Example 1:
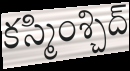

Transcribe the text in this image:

కస్మింశ్చిద్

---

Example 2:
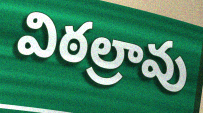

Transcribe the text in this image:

విఠల్రావు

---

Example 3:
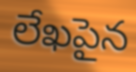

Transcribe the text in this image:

లేఖపైన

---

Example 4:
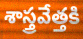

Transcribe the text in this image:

శాస్త్రవేత్తకి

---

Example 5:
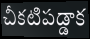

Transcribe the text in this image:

చీకటిపడ్డాక